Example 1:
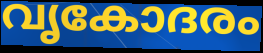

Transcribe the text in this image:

വൃകോദരം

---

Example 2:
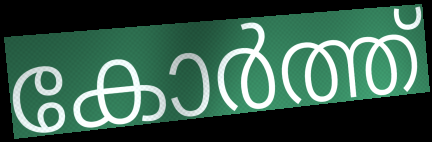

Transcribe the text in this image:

കോർത്ത്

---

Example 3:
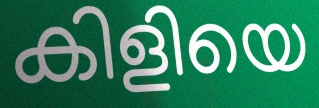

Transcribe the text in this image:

കിളിയെ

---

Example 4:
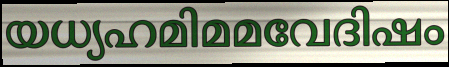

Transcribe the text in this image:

യധ്യഹമിമമവേദിഷം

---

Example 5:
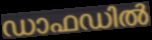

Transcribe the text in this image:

ഡാഫഡിൽ